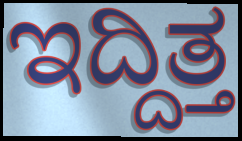
ಇದ್ದಿತ್ತ